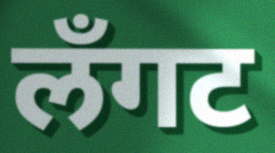
लँगट